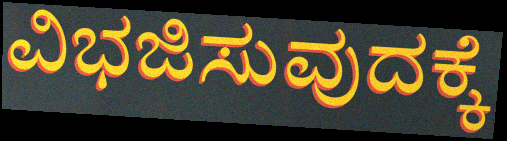
ವಿಭಜಿಸುವುದಕ್ಕೆ